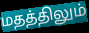
மதத்திலும்